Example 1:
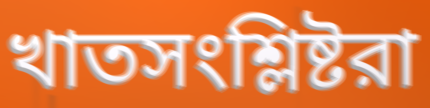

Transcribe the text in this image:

খাতসংশ্লিষ্টরা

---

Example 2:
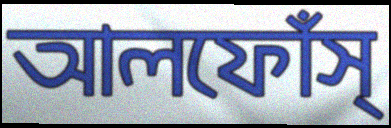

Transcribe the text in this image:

আলফোঁস্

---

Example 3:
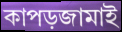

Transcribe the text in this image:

কাপড়জামাই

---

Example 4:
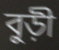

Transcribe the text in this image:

বুড়ী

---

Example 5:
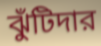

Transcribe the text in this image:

ঝুঁটিদার